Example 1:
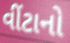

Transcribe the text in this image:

વીંટાનો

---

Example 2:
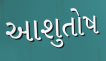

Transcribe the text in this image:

આશુતોષ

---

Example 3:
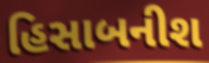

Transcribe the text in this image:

હિસાબનીશ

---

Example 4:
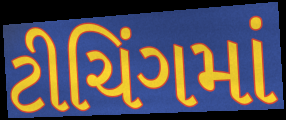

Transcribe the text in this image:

ટીચિંગમાં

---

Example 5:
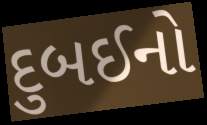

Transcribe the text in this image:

દુબઈનો